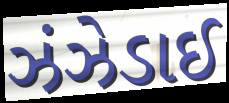
ઝંઝેડાઈ